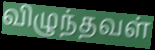
விழுந்தவள்